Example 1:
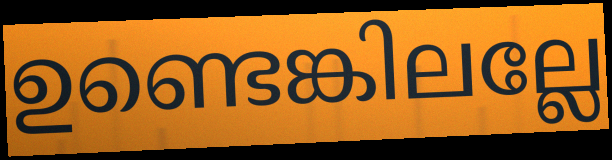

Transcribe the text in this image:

ഉണ്ടെങ്കിലല്ലേ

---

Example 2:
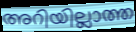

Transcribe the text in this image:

അറിയില്ലാത്ത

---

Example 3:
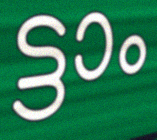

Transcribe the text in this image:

ട്ടാം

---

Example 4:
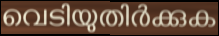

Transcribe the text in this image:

വെടിയുതിർക്കുക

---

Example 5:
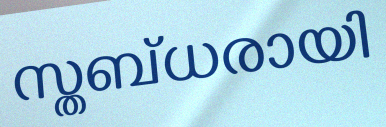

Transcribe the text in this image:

സ്തബ്ധരായി